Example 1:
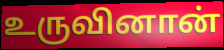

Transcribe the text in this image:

உருவினான்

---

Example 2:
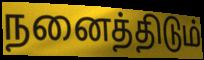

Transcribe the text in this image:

நனைத்திடும்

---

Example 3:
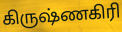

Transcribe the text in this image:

கிருஷ்ணகிரி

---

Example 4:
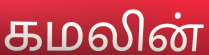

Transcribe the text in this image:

கமலின்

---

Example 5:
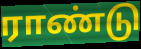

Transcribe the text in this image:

ராண்டு